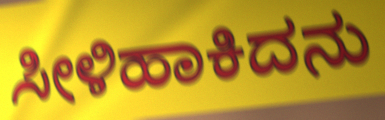
ಸೀಳಿಹಾಕಿದನು